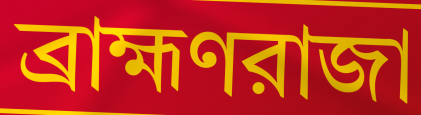
ব্রাহ্মণরাজা